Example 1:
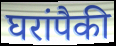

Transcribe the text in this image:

घरांपैकी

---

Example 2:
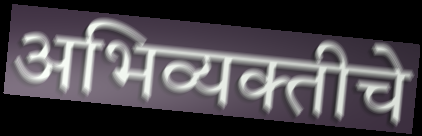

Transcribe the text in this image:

अभिव्यक्तीचे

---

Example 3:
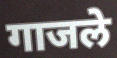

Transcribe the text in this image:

गाजले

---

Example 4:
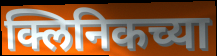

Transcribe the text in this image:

क्लिनिकच्या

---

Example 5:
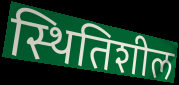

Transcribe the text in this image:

स्थितिशील